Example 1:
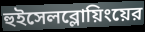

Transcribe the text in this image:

হুইসেলব্লোয়িংয়ের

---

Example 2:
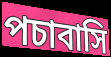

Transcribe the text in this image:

পচাবাসি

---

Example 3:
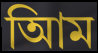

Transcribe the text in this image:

আিম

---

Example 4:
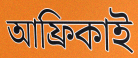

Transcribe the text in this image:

আফ্রিকাই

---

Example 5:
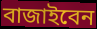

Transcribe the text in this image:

বাজাইবেন